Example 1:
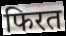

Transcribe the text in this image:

फिरत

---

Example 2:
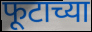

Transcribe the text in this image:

फूटाच्या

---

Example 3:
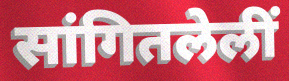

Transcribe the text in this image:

सांगितलेलीं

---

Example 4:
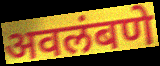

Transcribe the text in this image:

अवलंबणे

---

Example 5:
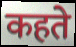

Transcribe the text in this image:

कहते